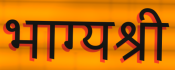
भाग्यश्री